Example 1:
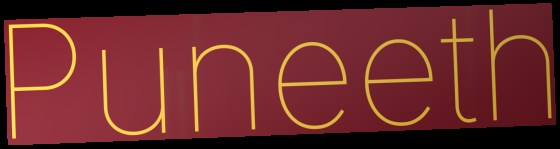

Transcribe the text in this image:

Puneeth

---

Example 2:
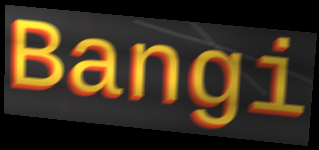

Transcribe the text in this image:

Bangi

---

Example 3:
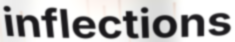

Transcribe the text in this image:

inflections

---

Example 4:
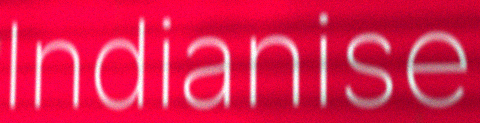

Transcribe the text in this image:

Indianise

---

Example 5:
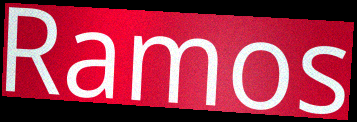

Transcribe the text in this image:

Ramos